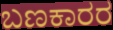
ಬಣಕಾರರ